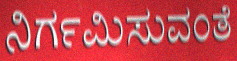
ನಿರ್ಗಮಿಸುವಂತೆ